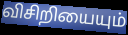
விசிறியையும்